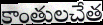
కాంతులచేత